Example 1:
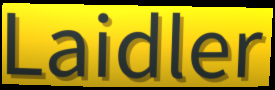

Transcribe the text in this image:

Laidler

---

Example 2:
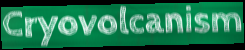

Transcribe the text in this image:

Cryovolcanism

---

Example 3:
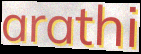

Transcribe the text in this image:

arathi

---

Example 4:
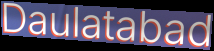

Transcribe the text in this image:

Daulatabad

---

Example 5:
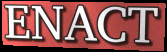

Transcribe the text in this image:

ENACT